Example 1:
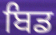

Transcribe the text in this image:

ਬਿਡ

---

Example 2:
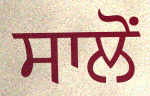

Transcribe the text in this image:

ਸਾਲੋਂ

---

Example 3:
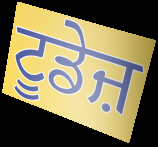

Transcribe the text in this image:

ਟੂਡੇਜ਼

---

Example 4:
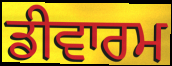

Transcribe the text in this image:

ਡੀਵਾਰਮ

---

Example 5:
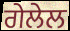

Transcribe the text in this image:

ਗੇਲੇਲ